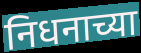
निधनाच्या